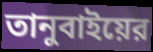
তানুবাইয়ের